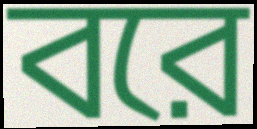
বরে